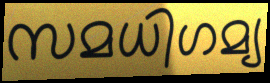
സമധിഗമ്യ